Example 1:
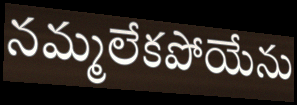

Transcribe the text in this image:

నమ్మలేకపోయేను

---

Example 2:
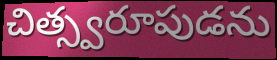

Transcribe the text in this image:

చిత్స్వరూపుడను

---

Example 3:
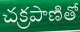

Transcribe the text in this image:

చక్రపాణితో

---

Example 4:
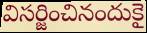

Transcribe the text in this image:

విసర్జించినందుకై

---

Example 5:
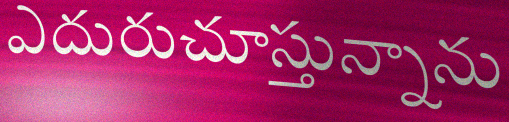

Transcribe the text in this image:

ఎదురుచూస్తున్నాను